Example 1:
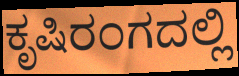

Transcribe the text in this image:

ಕೃಷಿರಂಗದಲ್ಲಿ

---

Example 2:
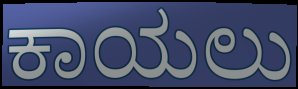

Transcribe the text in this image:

ಕಾಯಲು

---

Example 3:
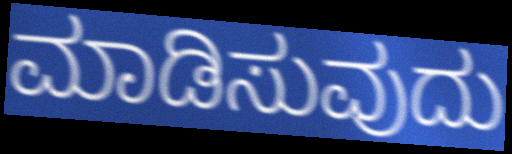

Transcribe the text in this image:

ಮಾಡಿಸುವುದು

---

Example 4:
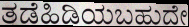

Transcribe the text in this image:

ತಡೆಹಿಡಿಯಬಹುದೇ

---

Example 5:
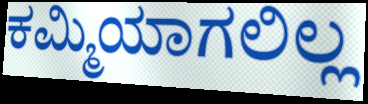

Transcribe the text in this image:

ಕಮ್ಮಿಯಾಗಲಿಲ್ಲ